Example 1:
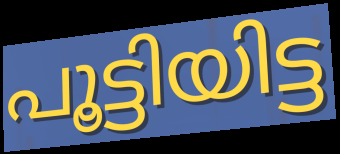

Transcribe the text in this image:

പൂട്ടിയിട്ട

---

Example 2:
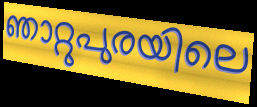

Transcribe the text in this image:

ഞാറ്റുപുരയിലെ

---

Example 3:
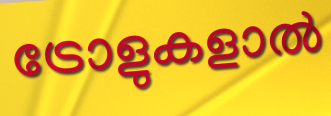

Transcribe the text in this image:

ട്രോളുകളാൽ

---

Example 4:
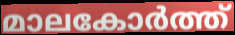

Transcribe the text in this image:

മാലകോർത്ത്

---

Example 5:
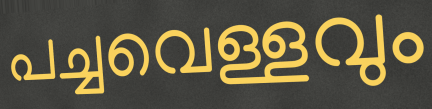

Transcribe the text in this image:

പച്ചവെള്ളവും